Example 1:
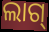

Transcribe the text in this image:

ଲାଗ୍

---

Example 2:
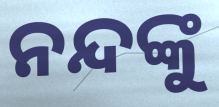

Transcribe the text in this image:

ନନ୍ଦଙ୍କୁ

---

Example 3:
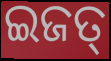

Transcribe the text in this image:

ଇଜତ୍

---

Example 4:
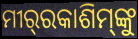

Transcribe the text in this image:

ମୀର୍‌ରକାଶିମ୍‌ଙ୍କୁ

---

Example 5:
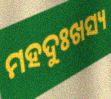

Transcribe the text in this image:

ମହଦୁଃଖସ୍ୟ